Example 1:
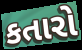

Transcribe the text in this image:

કતારો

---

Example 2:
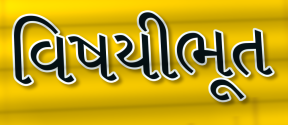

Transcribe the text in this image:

વિષયીભૂત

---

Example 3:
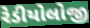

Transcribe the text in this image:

રેડીયોલોજી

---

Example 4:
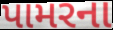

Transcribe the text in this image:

પામરના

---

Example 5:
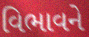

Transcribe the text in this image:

વિભાવને